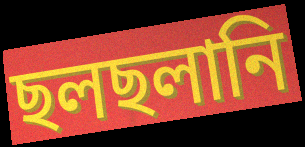
ছলছলানি